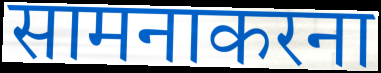
सामनाकरना